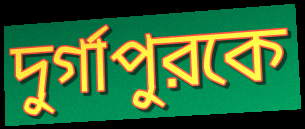
দুর্গাপুরকে